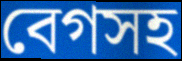
বেগসহ